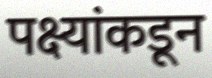
पक्ष्यांकडून